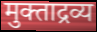
मुक्ताद्रव्य